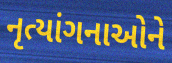
નૃત્યાંગનાઓને